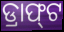
ଡ୍ରାଫ୍‍ଟ